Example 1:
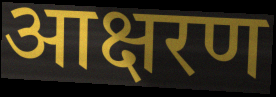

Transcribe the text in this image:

आक्षरण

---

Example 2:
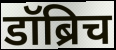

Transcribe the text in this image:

डॉब्रिच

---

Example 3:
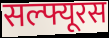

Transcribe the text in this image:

सल्फ्यूरस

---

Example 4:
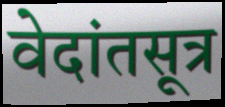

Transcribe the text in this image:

वेदांतसूत्र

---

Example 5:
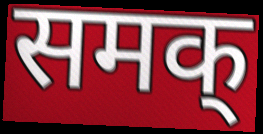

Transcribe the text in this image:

समक्